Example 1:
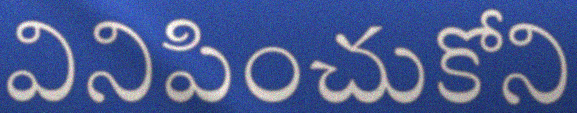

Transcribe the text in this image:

వినిపించుకోని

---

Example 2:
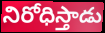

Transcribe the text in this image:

నిరోధిస్తాడు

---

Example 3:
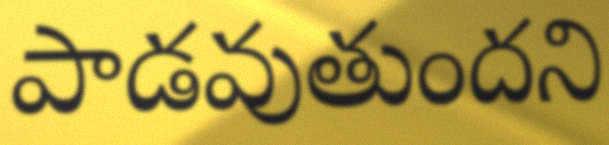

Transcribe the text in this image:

పాడవుతుందని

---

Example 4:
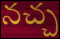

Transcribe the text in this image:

నచ్చ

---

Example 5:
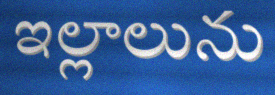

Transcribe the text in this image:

ఇల్లాలును